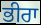
ਭੀਰਾ